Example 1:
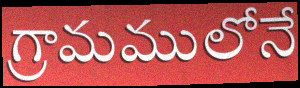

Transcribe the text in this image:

గ్రామములోనే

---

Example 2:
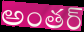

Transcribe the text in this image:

అంతర్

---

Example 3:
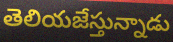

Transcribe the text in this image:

తెలియజేస్తున్నాడు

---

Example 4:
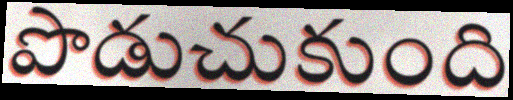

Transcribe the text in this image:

పొడుచుకుంది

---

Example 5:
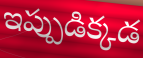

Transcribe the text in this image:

ఇప్పుడిక్కడ